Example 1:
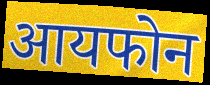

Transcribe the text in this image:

आयफोन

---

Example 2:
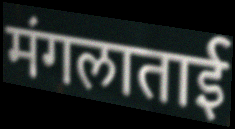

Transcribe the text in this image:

मंगलाताई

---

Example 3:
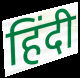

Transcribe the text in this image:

हिंदी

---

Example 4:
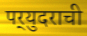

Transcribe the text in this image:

पर्युदराची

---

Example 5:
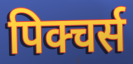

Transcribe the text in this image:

पिक्चर्स